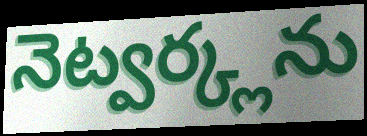
నెట్వర్క్లను